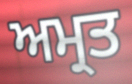
ਅਮ੍ਰਤ